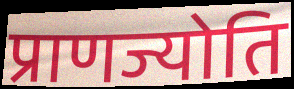
प्राणज्योति